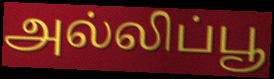
அல்லிப்பூ